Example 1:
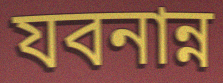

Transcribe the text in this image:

যবনান্ন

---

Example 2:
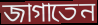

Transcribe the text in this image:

জাগাতেন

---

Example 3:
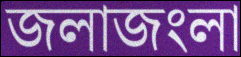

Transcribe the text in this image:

জলাজংলা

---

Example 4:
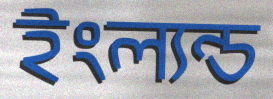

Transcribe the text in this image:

ইংল্যন্ড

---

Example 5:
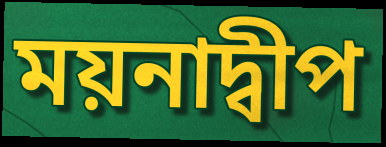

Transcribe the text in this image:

ময়নাদ্বীপ